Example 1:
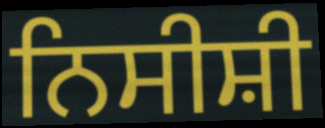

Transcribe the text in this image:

ਨਿਸੀਸ਼ੀ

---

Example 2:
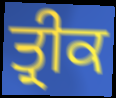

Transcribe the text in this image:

ਤ੍ਰੀਕ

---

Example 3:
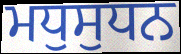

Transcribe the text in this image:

ਮਧੁਸੁਧਨ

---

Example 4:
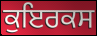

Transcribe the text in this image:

ਕੁਇਰਕਸ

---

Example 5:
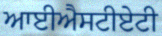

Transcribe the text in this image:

ਆਈਐਸਟੀਏਟੀ